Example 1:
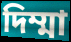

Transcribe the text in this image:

দিম্মা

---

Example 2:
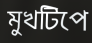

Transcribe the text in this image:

মুখটিপে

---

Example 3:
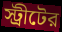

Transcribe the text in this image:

স্ট্রীটের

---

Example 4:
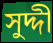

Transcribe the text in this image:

সুদ্দী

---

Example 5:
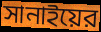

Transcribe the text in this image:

সানাইয়ের